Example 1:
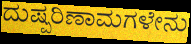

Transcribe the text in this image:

ದುಷ್ಪರಿಣಾಮಗಳೇನು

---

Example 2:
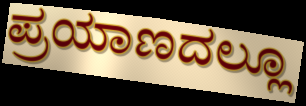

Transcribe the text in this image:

ಪ್ರಯಾಣದಲ್ಲೂ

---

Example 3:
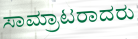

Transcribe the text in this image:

ಸಾಮ್ರಾಟರಾದರು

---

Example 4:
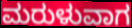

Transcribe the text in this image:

ಮರುಳುವಾಗ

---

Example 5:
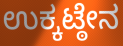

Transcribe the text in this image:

ಉಕ್ಕಟ್ಠೇನ